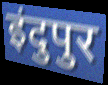
इंदुपुर